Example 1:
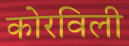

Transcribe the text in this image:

कोरविली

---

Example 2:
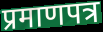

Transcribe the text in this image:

प्रमाणपत्र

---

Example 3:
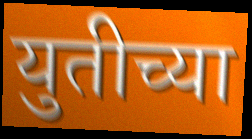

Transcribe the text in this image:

युतीच्या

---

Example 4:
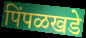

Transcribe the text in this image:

पिंपळखडे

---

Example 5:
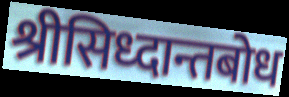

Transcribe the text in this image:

श्रीसिध्दान्तबोध